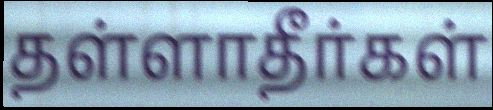
தள்ளாதீர்கள்